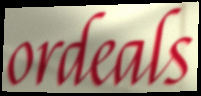
ordeals